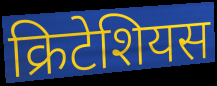
क्रिटेशियस